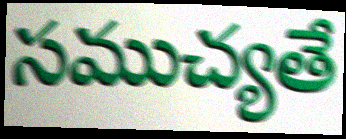
సముచ్యతే